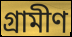
গ্ৰামীণ